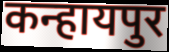
कन्हायपुर